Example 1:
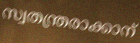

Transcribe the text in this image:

സ്വതന്ത്രരാക്കാന്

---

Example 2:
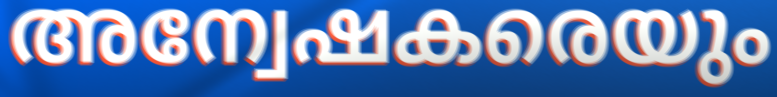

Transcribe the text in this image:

അന്വേഷകരെയും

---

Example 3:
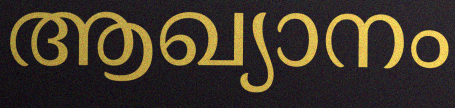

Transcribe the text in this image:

ആഖ്യാനം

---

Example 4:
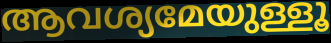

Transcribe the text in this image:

ആവശ്യമേയുള്ളൂ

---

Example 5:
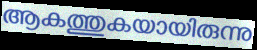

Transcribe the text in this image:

ആകത്തുകയായിരുന്നു